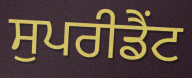
ਸੁਪਰੀਡੈਂਟ